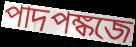
পাদপঙ্কজে